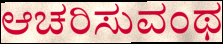
ಆಚರಿಸುವಂಥ